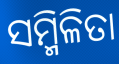
ସମ୍ମିଳିତା